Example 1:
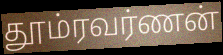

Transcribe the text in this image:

தூம்ரவர்ணன்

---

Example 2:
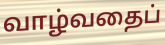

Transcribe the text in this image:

வாழ்வதைப்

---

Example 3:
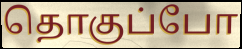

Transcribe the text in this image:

தொகுப்போ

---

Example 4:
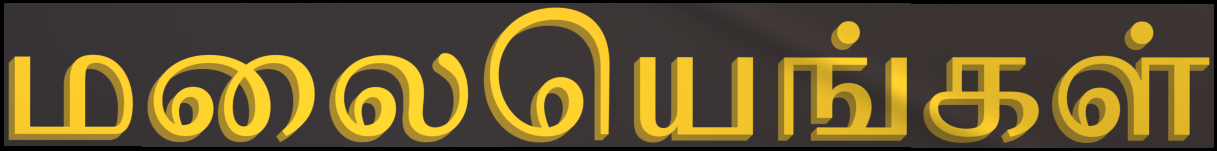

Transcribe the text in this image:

மலையெங்கள்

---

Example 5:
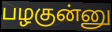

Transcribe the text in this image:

பழகுன்னு